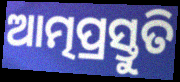
ଆତ୍ମପ୍ରସ୍ତୁତି